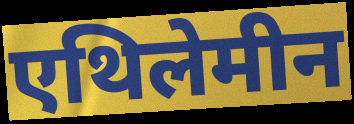
एथिलेमीन